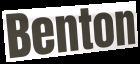
Benton